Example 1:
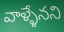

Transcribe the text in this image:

వాళ్ళేనని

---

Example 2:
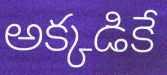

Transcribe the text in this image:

అక్కడికే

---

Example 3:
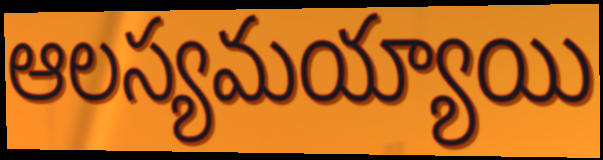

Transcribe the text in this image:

ఆలస్యమయ్యాయి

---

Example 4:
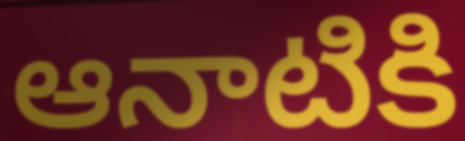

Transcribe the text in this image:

ఆనాటికి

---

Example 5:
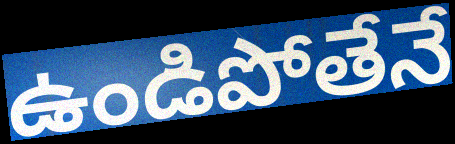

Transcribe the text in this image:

ఉండిపోతేనే